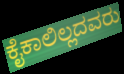
ಕೈಕಾಲಿಲ್ಲದವರು